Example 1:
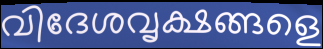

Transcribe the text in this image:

വിദേശവൃക്ഷങ്ങളെ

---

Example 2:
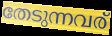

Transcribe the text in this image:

തേടുന്നവര്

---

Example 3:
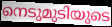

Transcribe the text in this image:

നെടുമുടിയുടെ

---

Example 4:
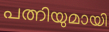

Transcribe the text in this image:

പത്നിയുമായി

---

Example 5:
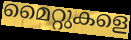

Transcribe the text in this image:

മൈറ്റുകളെ